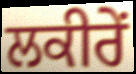
ਲਕੀਰੇਂ